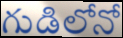
గుడిలోనో